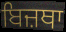
ਬਿਜ਼ਥਾ